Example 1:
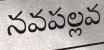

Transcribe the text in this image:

నవపల్లవ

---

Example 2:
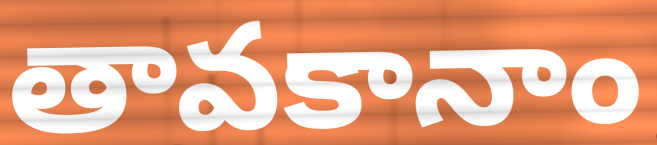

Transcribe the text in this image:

తావకానాం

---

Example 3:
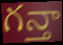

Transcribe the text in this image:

గన్తా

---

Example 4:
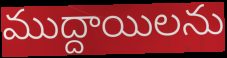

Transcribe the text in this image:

ముద్దాయిలను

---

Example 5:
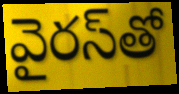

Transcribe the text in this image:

వైరస్‌తో